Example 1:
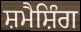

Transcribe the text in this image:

ਸ਼ਮੈਸ਼ਿੰਗ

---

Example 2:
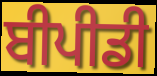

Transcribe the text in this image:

ਬੀਪੀਡੀ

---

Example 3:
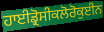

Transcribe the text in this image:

ਹਾਈਡ੍ਰੋਸੀਕਲੋਰੋਕੁਈਨ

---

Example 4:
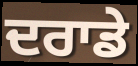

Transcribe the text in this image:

ਦਰਾਡੇ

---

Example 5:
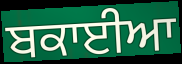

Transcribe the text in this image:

ਬਕਾਈਆ